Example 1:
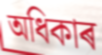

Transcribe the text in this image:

অধিকাৰ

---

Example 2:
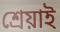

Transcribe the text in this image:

শ্ৰেয়াই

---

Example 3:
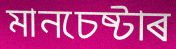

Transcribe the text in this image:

মানচেষ্টাৰ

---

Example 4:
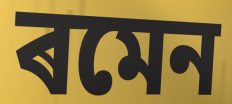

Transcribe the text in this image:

ৰমেন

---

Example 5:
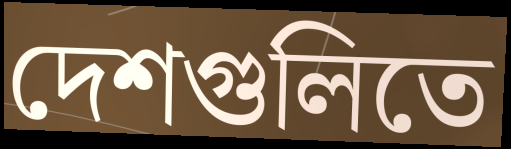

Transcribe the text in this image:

দেশগুলিতে